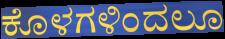
ಕೊಳಗಳಿಂದಲೂ